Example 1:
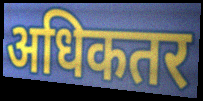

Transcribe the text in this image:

अधिकतर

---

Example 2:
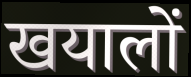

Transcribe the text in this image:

खयालों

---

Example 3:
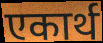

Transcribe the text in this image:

एकार्थ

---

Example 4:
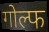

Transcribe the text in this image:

गोल्फ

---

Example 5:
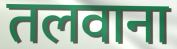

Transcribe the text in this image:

तलवाना